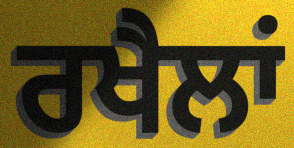
ਰਖੈਲਾਂ